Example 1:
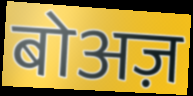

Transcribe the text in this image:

बोअज़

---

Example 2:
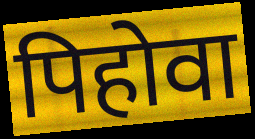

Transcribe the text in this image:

पिहोवा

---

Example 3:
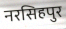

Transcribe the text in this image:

नरसिहपुर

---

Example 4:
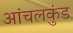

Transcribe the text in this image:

आंचलकुंड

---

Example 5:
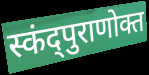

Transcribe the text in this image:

स्कंद्पुराणोक्त